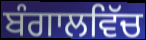
ਬੰਗਾਲਵਿੱਚ